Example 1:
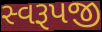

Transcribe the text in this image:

સ્વરૂપજી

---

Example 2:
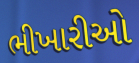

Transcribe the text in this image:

ભીખારીઓ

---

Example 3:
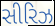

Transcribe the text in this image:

સીરિઝ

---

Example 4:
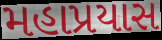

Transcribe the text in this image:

મહાપ્રયાસ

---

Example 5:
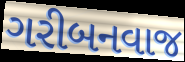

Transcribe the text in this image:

ગરીબનવાજ